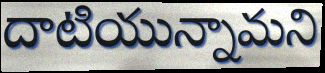
దాటియున్నామని